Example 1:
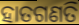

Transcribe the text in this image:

ହାତଗଣତି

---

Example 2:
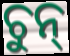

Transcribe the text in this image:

ଚୁନ୍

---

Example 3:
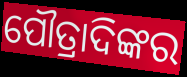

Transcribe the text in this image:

ପୌତ୍ରାଦିଙ୍କର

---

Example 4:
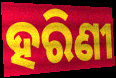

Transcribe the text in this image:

ହରିଣୀ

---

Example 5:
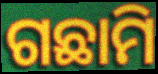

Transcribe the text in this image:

ଗଛାମି